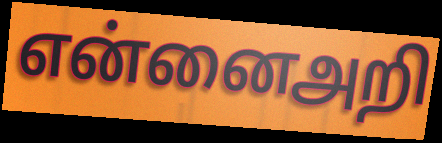
என்னைஅறி